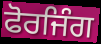
ਫੋਰਜਿੰਗ